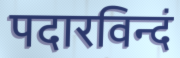
पदारविन्दं